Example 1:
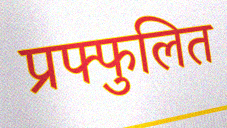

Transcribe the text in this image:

प्रफ्फुलित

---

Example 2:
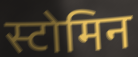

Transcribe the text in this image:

स्टोमिन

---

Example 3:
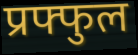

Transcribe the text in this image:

प्रफ्फुल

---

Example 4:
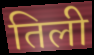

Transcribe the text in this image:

तिली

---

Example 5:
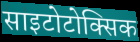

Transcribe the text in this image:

साइटोटोक्सिक